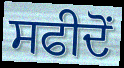
ਸਫੀਦੋਂ